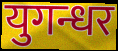
युगन्धर